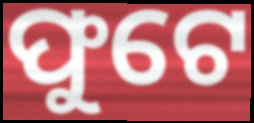
ଫୁଟେ